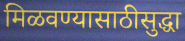
मिळवण्यासाठीसुद्धा